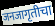
जनजागृतीचा